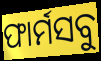
ଫାର୍ମସବୁ